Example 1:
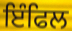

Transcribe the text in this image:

ਇੰਫਿਲ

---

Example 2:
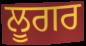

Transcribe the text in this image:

ਲੂਗਰ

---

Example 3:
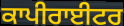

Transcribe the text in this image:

ਕਾਪੀਰਾਈਟਰ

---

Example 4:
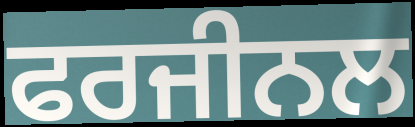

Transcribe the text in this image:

ਫਰਜੀਨਲ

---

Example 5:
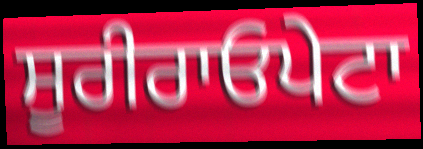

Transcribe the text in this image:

ਸੂਰੀਰਾਓਪੇਟਾ